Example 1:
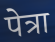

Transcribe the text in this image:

पेत्रा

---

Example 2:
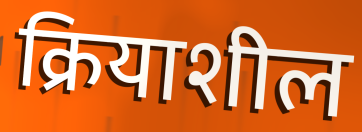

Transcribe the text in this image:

क्रियाशील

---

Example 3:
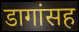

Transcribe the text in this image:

डागांसह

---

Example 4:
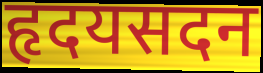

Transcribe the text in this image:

हृदयसदन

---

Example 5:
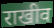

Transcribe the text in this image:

राखीव